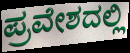
ಪ್ರವೇಶದಲ್ಲಿ